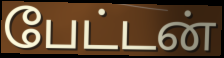
பேட்டன்